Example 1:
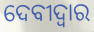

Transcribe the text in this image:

ଦେବୀଦ୍ବାର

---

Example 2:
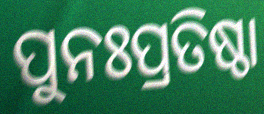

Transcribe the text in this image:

ପୁନଃପ୍ରତିଷ୍ଠା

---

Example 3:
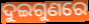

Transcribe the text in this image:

ଦୁଇଗୁଣରେ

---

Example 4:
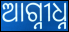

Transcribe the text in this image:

ଆଗ୍ନୀଧ୍ନ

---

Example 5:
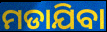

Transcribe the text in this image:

ମଡାଯିବା